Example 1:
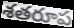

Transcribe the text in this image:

శతరూప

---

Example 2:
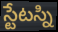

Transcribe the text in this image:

స్టేటస్ని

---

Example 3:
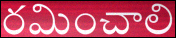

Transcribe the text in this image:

రమించాలి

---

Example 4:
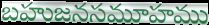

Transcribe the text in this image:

బహుజనసమూహము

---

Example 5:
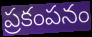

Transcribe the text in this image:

ప్రకంపనం